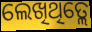
ଲେଖିଥିତ୍ଲେ